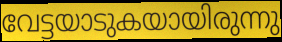
വേട്ടയാടുകയായിരുന്നു